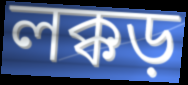
লক্কড়